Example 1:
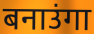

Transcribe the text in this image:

बनाउंगा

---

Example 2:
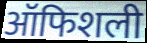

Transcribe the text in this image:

ऑफिशली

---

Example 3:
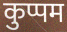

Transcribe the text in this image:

कुप्पम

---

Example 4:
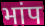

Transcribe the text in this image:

भांप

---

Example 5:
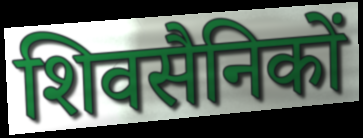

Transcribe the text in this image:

शिवसैनिकों